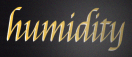
humidity